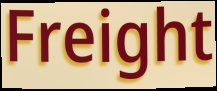
Freight